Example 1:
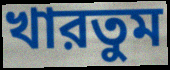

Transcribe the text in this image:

খারতুম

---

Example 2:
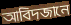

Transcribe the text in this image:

আবিদজানে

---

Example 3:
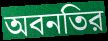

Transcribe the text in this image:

অবনতির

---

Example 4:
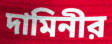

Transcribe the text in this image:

দামিনীর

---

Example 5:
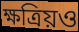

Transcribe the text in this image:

ক্ষত্রিয়ও